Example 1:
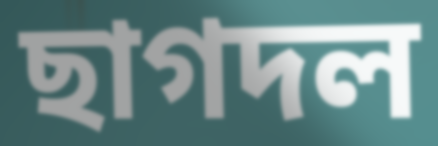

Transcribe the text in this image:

ছাগদল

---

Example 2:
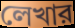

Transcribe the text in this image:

লেখার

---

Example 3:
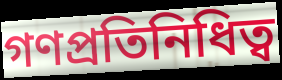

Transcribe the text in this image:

গণপ্রতিনিধিত্ব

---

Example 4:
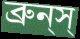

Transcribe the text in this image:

ব্রুন্‌স্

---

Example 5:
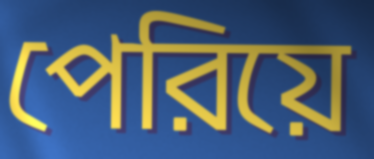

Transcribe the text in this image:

পেরিয়ে